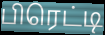
பிரெட்டி